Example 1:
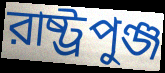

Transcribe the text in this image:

রাষ্ট্রপুঞ্জ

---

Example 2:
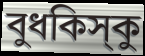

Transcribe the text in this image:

বুধকিস্‌কু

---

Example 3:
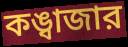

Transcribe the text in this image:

কঙ্বাজার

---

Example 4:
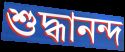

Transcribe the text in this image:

শুদ্ধানন্দ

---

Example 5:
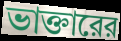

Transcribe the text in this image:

ভাক্তারের